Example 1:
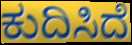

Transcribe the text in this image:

ಕುದಿಸಿದೆ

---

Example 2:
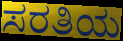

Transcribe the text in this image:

ಸರತಿಯ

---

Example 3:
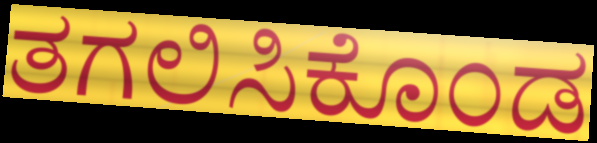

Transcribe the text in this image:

ತಗಲಿಸಿಕೊಂಡ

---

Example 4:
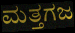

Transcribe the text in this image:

ಮತ್ತಗಜ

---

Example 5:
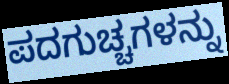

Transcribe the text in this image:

ಪದಗುಚ್ಚಗಳನ್ನು